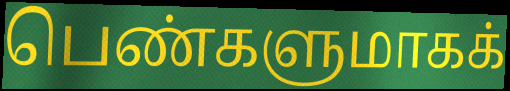
பெண்களுமாகக்